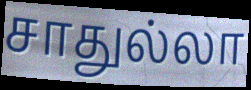
சாதுல்லா